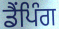
ਡੈਂਪਿੰਗ